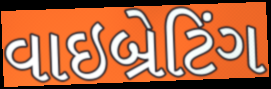
વાઇબ્રેટિંગ